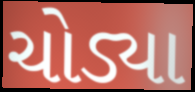
ચોડ્યા